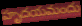
హృదయమందు